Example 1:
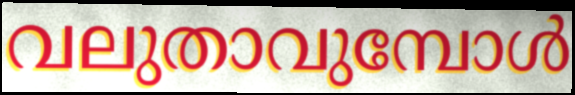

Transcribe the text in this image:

വലുതാവുമ്പോൾ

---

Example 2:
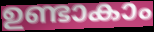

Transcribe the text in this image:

ഉണ്ടാകാം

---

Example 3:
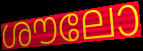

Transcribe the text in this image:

ശൗലോ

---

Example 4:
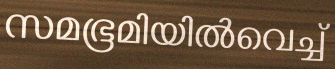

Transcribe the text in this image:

സമഭൂമിയിൽവെച്ച്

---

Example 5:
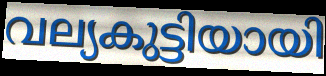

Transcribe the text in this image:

വല്യകുട്ടിയായി